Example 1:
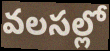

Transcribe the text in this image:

వలసల్లో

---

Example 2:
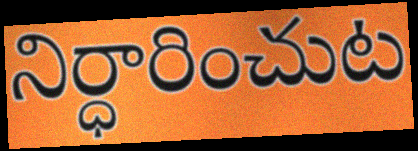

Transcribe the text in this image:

నిర్ధారించుట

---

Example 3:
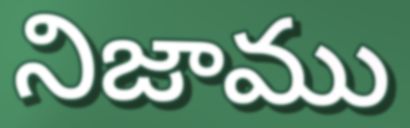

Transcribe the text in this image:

నిజాము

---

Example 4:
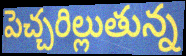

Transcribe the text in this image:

పెచ్చరిల్లుతున్న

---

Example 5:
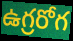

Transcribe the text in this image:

ఉగ్రరోగ